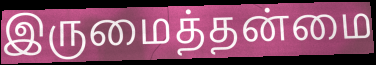
இருமைத்தன்மை